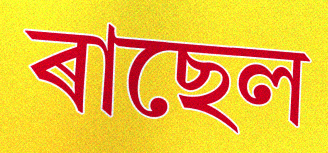
ৰাছেল